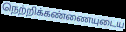
நெற்றிக்கண்ணையுடைய